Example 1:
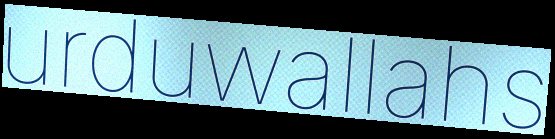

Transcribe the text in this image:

urduwallahs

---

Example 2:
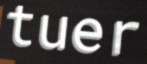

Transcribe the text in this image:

tuer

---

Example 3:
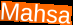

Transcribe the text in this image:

Mahsa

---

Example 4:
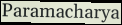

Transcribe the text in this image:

Paramacharya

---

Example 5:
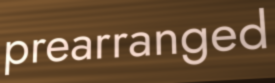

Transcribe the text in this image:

prearranged